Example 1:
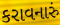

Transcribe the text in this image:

કરાવનારું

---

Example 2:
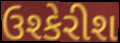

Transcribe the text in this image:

ઉશ્કેરીશ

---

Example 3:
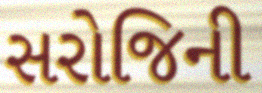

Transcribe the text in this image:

સરોજિની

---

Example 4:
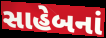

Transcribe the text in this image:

સાહેબનાં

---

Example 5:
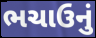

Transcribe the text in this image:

ભચાઉનું